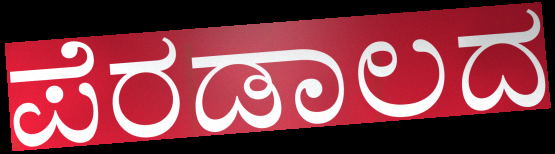
ಪೆರಡಾಲದ